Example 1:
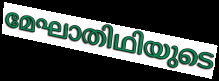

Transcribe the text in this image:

മേഘാതിഥിയുടെ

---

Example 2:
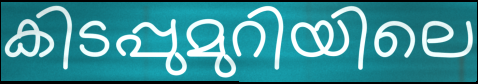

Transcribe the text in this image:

കിടപ്പുമുറിയിലെ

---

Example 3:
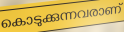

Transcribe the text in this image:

കൊടുക്കുന്നവരാണ്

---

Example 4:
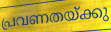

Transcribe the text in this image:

പ്രവണതയ്ക്കു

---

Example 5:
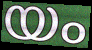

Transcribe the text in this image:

യം